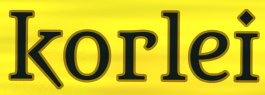
korlei